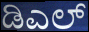
ಡಿಎಲ್